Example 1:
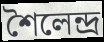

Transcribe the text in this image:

শৈলেন্দ্র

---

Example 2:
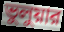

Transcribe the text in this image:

ভুলুয়ার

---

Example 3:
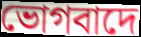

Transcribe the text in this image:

ভোগবাদে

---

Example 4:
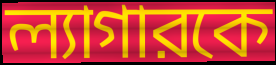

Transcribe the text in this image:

ল্যাগারকে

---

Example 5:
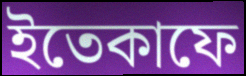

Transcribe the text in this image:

ইতেকাফে